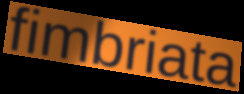
fimbriata